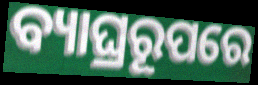
ବ୍ୟାଘ୍ରରୂପରେ